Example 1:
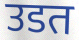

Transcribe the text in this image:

उडत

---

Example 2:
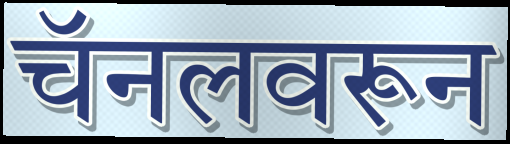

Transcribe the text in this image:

चॅनलवरून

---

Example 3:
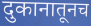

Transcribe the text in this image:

दुकानातूनच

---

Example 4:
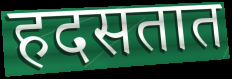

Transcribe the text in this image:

हदसतात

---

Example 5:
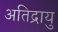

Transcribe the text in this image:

अतिद्रायु